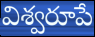
విశ్వరూపే